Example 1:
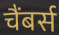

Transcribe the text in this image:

चैंबर्स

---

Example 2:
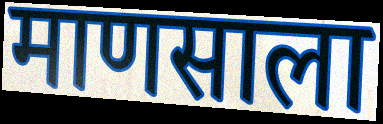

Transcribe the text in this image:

माणसाला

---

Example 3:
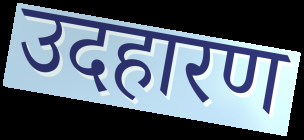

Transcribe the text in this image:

उदहारण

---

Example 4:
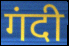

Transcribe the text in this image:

गंदी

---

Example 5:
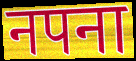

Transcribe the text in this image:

नपना